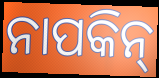
ନାପକିନ୍